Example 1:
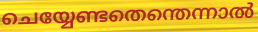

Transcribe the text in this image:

ചെയ്യേണ്ടതെന്തെന്നാൽ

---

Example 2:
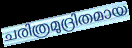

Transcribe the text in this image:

ചരിത്രമുദ്രിതമായ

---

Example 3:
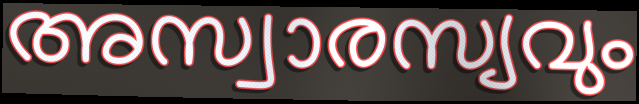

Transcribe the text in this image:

അസ്വാരസ്യവും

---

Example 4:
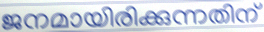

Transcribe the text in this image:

ജനമായിരിക്കുന്നതിന്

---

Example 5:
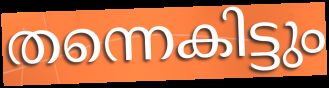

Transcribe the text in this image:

തന്നെകിട്ടും